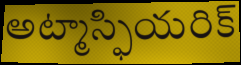
అట్మాస్ఫియరిక్